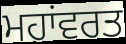
ਮਹਾਂਵਰਤ